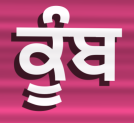
ਕੂੰਬ